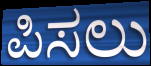
ಪಿಸಲು